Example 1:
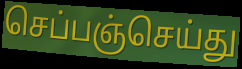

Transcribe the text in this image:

செப்பஞ்செய்து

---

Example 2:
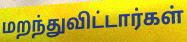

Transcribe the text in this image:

மறந்துவிட்டார்கள்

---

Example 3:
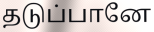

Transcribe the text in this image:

தடுப்பானே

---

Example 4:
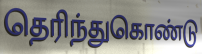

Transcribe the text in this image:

தெரிந்துகொண்டு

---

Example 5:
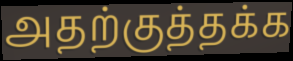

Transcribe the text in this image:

அதற்குத்தக்க